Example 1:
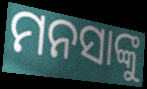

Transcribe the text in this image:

ମନସାଙ୍କୁ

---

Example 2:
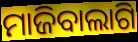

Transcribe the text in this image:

ମାଜିବାଲାଗି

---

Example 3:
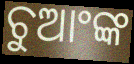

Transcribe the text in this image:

ଚୁଆଂଙ୍କ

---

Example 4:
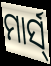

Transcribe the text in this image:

ମାର୍ସ୍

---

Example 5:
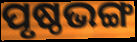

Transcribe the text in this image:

ପୃଷ୍ଠଭଙ୍ଗ